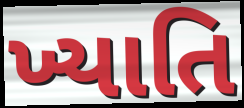
ખ્યાતિ